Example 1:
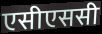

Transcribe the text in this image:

एसीएससी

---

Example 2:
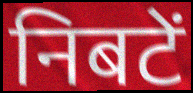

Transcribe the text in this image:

निबटें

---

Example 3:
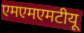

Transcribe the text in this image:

एमएमएमटीयू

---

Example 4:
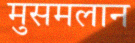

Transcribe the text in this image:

मुसमलान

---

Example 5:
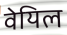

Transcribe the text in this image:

वेयिल